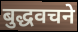
बुद्धवचने